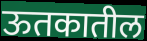
ऊतकातील